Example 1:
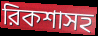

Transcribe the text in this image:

রিকশাসহ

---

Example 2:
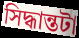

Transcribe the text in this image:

সিদ্ধান্তটা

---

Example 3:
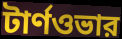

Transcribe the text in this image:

টার্ণওভার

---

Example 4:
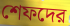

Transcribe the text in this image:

শেফদের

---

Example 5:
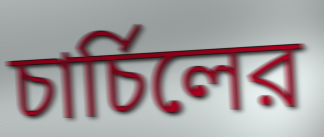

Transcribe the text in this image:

চার্চিলের